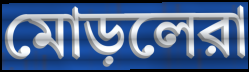
মোড়লেরা